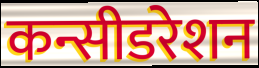
कन्सीडरेशन